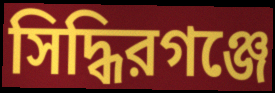
সিদ্ধিরগঞ্জে